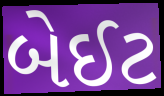
બેઈટ